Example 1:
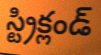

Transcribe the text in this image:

స్ట్రిక్లండ్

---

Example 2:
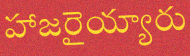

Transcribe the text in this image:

హాజరైయ్యారు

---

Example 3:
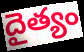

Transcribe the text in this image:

దైత్యం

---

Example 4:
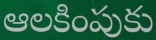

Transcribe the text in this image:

ఆలకింపుకు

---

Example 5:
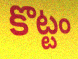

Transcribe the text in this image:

కొట్టం